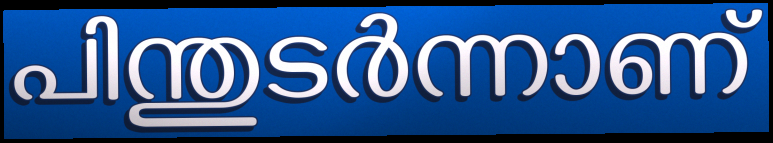
പിന്തുടർന്നാണ്